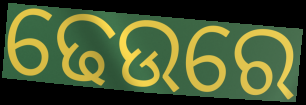
ଢେଉରେ